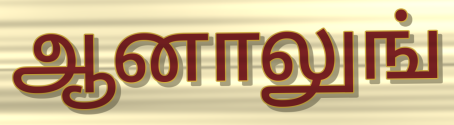
ஆனாலுங்